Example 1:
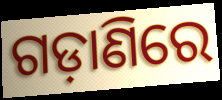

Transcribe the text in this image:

ଗଡ଼ାଣିରେ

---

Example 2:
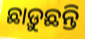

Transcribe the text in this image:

ଛାଡ଼ୁଛନ୍ତି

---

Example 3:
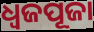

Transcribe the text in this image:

ଧ୍ୱଜପୂଜା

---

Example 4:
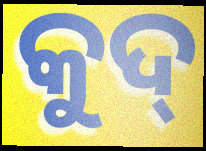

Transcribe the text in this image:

କୁଦ୍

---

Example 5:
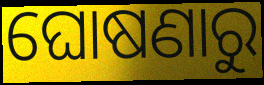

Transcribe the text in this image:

ଘୋଷଣାରୁ